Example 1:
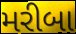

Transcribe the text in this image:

મરીબા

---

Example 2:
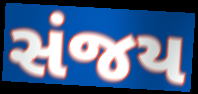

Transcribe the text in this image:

સંજય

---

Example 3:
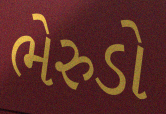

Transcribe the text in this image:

ભેરુડો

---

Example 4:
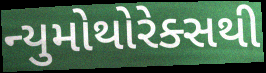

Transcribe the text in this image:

ન્યુમોથોરેક્સથી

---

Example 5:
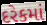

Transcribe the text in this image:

દરેકમાં